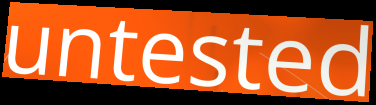
untested